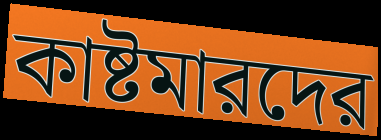
কাষ্টমারদের